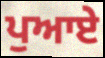
ਪੁਆਏ